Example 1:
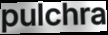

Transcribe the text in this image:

pulchra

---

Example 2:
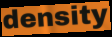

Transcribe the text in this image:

density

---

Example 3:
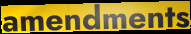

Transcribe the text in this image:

amendments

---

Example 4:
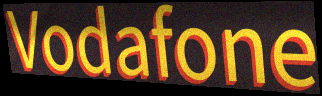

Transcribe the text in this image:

Vodafone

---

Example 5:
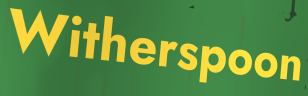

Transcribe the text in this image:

Witherspoon